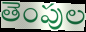
తెంపుల